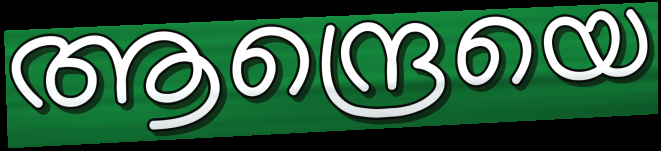
ആന്ദ്രെയെ